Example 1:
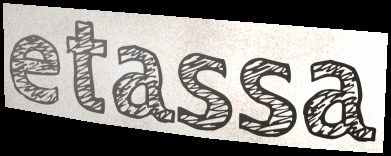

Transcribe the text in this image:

etassa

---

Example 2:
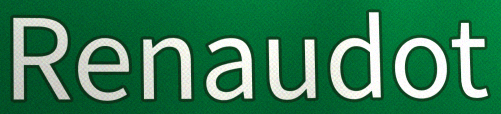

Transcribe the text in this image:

Renaudot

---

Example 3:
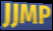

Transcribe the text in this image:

JJMP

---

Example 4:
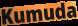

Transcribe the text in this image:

Kumuda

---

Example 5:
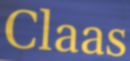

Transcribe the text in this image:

Claas